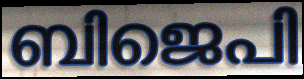
ബിജെപി